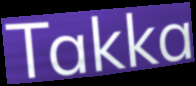
Takka